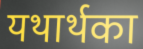
यथार्थका